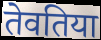
तेवतिया